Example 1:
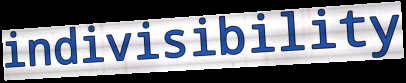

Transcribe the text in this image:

indivisibility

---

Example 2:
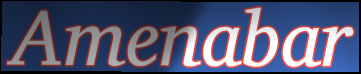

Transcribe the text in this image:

Amenabar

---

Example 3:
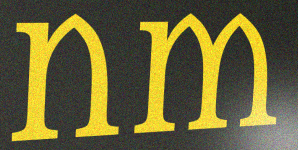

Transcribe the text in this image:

nm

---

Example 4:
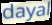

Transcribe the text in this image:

dayal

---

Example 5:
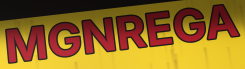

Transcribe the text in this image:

MGNREGA